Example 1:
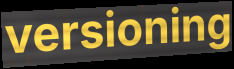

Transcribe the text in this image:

versioning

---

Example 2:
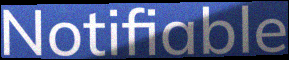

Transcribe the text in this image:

Notifiable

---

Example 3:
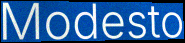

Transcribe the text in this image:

Modesto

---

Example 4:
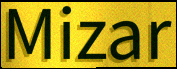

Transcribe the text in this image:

Mizar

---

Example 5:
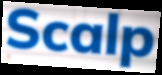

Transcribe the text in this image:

Scalp